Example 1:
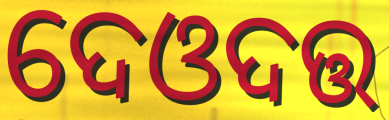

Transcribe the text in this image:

ଦେଓଦତ୍ତ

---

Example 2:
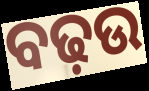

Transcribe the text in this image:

ବଢ଼ଉ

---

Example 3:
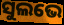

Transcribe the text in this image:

ସୁଲଭେ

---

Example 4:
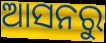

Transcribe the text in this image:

ଆସନରୁ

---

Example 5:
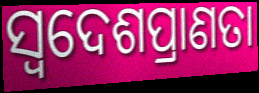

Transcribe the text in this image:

ସ୍ଵଦେଶପ୍ରାଣତା